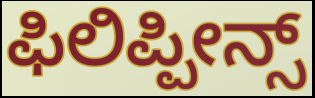
ಫಿಲಿಪ್ಪೀನ್ಸ್